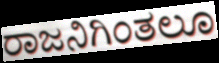
ರಾಜನಿಗಿಂತಲೂ